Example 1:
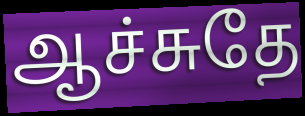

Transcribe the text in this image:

ஆச்சுதே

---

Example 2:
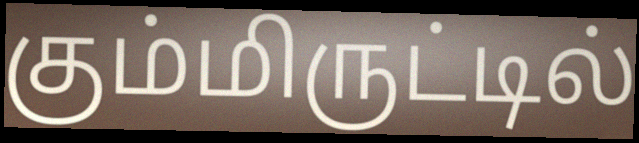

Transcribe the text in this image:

கும்மிருட்டில்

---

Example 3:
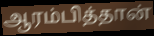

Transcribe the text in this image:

ஆரம்பித்தான்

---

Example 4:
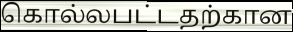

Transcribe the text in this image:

கொல்லபட்டதற்கான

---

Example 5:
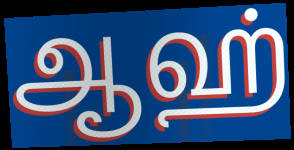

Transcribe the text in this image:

ஆஹ்